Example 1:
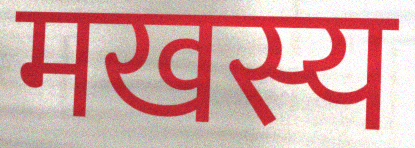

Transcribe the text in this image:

मखस्य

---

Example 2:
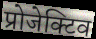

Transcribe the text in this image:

प्रोजेक्टिव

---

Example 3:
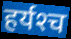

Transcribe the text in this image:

हर्यश्च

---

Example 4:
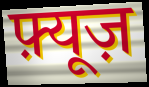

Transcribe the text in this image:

फ़्यूज़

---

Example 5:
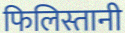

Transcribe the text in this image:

फिलिस्तानी